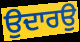
ਉਦਾਰਉ